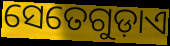
ସେତେଗୁଡ଼ାଏ